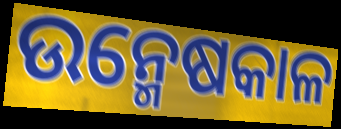
ଉନ୍ମେଷକାଳ